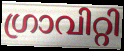
ഗ്രാവിറ്റി